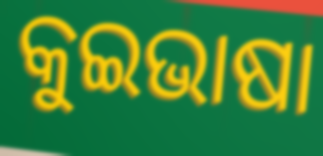
କୁଇଭାଷା